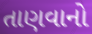
તાણવાનો